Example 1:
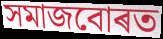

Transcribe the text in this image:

সমাজবোৰত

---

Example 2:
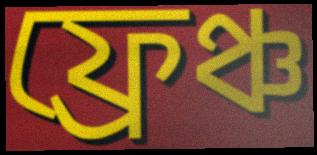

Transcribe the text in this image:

ফ্ৰেঞ্চ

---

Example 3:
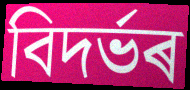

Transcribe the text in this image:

বিদৰ্ভৰ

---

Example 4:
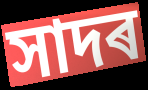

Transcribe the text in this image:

সাদৰ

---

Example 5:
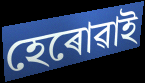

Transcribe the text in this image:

হেৰোৱাই